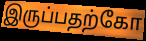
இருப்பதற்கோ